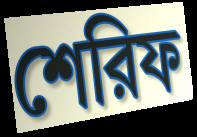
শেরিফ